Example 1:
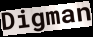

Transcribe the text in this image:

Digman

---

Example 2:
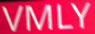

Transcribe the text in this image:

VMLY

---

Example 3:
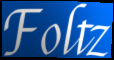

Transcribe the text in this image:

Foltz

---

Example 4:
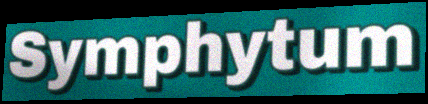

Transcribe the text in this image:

Symphytum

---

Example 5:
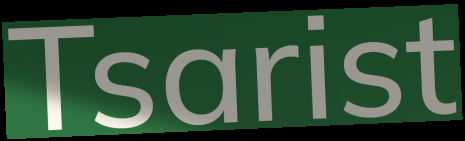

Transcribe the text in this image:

Tsarist